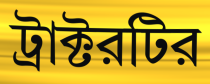
ট্রাক্টরটির